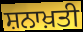
ਸ਼ਨਾਖ਼ਤੀ